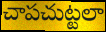
చాపచుట్టలా